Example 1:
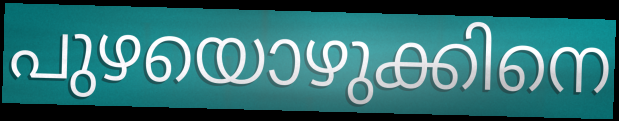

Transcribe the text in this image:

പുഴയൊഴുക്കിനെ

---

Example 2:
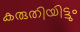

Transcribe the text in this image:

കരുതിയിട്ടും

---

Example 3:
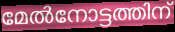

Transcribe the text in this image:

മേൽനോട്ടത്തിന്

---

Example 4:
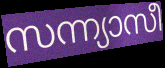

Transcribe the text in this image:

സന്ന്യാസീ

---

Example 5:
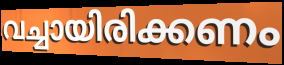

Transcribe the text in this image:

വച്ചായിരിക്കണം